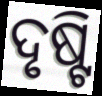
ଦୃଷ୍ଟି